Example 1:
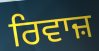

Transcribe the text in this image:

ਰਿਵਾਜ਼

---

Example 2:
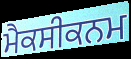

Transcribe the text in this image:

ਮੈਕਸੀਕਨਮ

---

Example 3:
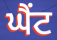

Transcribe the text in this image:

ਘੈਂਟ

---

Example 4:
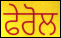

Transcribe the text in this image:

ਫੇਰੋਲ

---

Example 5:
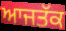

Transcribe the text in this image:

ਆਜਤੱਕ